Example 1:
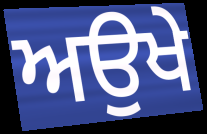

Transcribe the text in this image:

ਅਉਖੇ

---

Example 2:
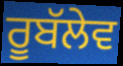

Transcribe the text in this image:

ਰੂਬੱਲੇਵ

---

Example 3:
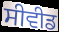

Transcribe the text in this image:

ਸੀਵੀਡ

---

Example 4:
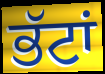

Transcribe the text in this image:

ਭੱਟਾਂ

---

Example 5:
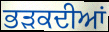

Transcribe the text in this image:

ਭੜਕਦੀਆਂ